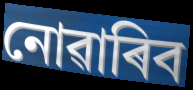
নোৱাৰিব